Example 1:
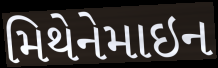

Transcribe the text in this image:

મિથેનેમાઇન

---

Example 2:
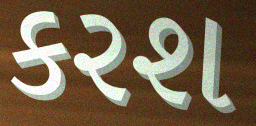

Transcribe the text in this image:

કરશ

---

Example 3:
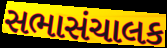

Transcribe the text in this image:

સભાસંચાલક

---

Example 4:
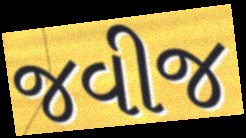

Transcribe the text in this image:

જવીજ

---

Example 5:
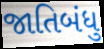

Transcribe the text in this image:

જાતિબંધુ